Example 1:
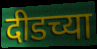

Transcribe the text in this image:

दीडच्या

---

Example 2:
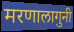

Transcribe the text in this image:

मरणालागुनी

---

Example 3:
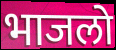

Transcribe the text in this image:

भाजलो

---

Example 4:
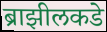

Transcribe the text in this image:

ब्राझीलकडे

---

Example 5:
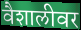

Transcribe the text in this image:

वैशालीवर